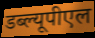
डब्ल्यूपीएल